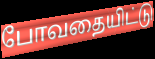
போவதையிட்டு